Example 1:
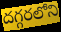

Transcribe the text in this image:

దగ్గరలోని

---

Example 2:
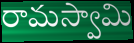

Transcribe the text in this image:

రామస్వామి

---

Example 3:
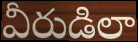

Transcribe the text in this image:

వీరుడిలా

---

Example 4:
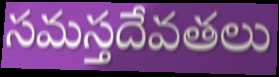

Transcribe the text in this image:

సమస్తదేవతలు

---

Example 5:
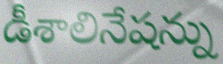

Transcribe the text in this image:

డీశాలినేషన్ను